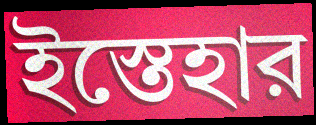
ইস্তেহার